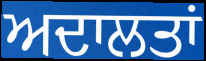
ਅਦਾਲਤਾਂ